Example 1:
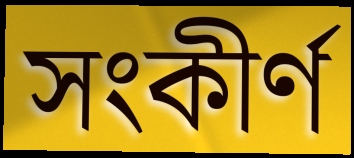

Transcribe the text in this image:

সংকীৰ্ণ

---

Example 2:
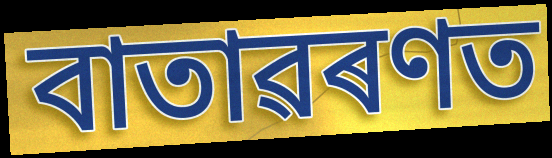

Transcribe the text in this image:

বাতাৱৰণত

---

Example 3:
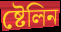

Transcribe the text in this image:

ষ্টেলিন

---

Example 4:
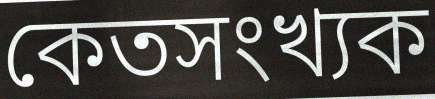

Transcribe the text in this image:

কেতসংখ্যক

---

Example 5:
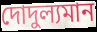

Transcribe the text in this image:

দোদুল্যমান